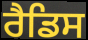
ਰੈਡਿਸ